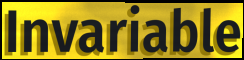
Invariable